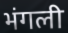
भंगली